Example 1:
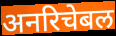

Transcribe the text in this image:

अनरिचेबल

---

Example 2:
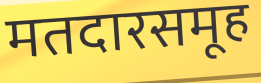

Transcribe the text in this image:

मतदारसमूह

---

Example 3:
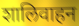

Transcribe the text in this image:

शालिवाहन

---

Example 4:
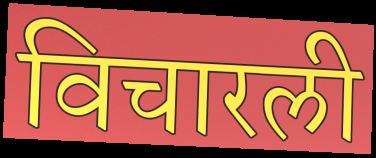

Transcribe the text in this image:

विचारली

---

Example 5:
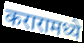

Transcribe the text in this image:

करारामध्ये